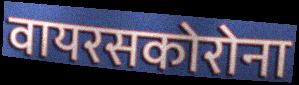
वायरसकोरोना